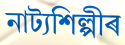
নাট্যশিল্পীৰ